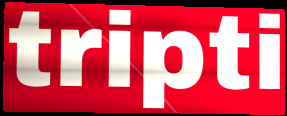
tripti